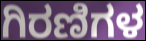
ಗಿರಣಿಗಳ